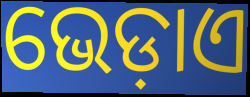
ଭେଡ଼ାଏ